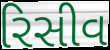
રિસીવ